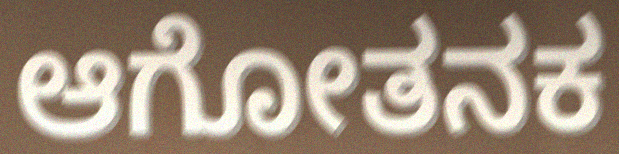
ಆಗೋತನಕ